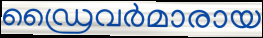
ഡ്രൈവർമാരായ